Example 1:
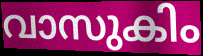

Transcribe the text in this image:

വാസുകിം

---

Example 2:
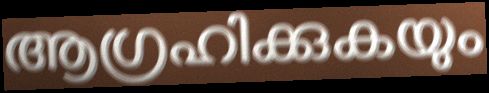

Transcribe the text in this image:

ആഗ്രഹിക്കുകയും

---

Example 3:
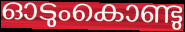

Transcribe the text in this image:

ഓടുംകൊണ്ടു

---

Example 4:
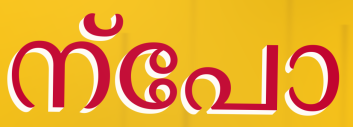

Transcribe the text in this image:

ന്പോ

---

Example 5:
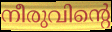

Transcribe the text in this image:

നീരുവിന്റെ